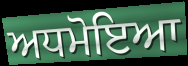
ਅਧਮੋਇਆ